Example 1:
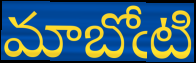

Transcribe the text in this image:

మాబోఁటి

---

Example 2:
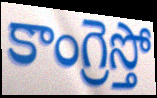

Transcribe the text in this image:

కాంగ్రెస్తో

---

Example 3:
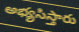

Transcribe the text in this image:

అభ్యసిస్తారు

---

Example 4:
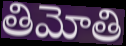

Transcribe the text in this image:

తిమోతి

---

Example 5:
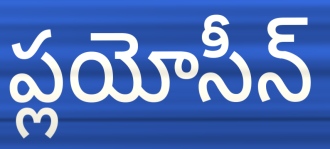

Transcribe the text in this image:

ప్లయోసీన్